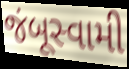
જંબૂસ્વામી